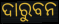
ଦାରୁବନ